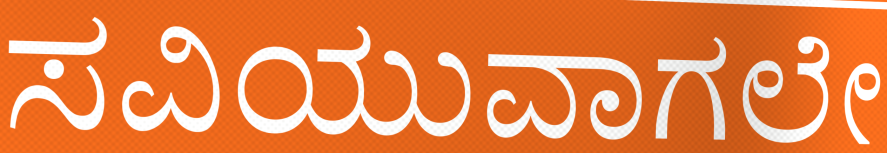
ಸವಿಯುವಾಗಲೇ